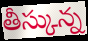
తీస్కున్న